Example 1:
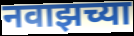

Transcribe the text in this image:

नवाझच्या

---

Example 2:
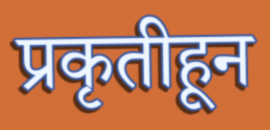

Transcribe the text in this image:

प्रकृतीहून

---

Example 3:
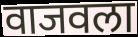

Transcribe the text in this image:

वाजवला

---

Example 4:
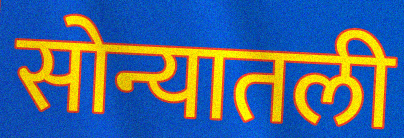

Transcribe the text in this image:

सोन्यातली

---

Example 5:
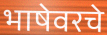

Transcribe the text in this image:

भाषेवरचे